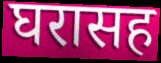
घरासह